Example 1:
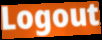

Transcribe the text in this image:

Logout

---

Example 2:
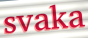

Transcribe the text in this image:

svaka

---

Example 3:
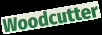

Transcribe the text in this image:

Woodcutter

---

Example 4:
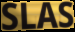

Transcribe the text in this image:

SLAS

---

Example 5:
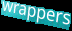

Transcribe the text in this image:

wrappers